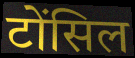
टोंसिल